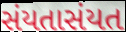
સંયતાસંયત